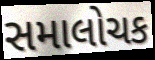
સમાલોચક